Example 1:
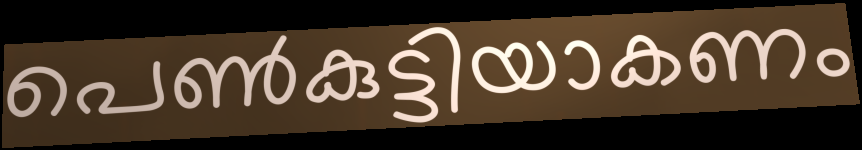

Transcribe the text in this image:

പെൺകുട്ടിയാകണം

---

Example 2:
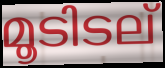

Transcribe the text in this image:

മൂടിടല്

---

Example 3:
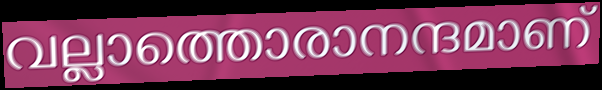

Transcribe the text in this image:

വല്ലാത്തൊരാനന്ദമാണ്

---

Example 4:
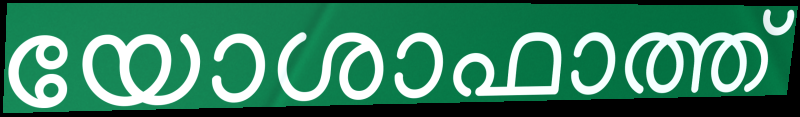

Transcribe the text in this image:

യോശാഫാത്ത്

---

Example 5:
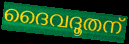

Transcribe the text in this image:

ദൈവദൂതന്